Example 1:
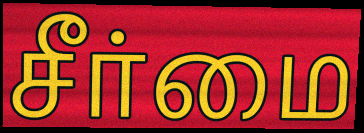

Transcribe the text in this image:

சீர்மை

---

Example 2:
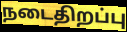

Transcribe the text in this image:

நடைதிறப்பு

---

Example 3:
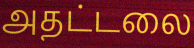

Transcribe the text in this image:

அதட்டலை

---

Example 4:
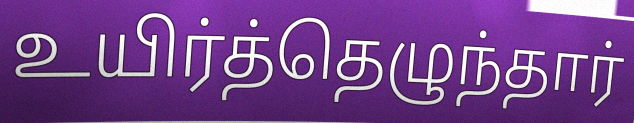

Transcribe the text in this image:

உயிர்த்தெழுந்தார்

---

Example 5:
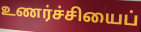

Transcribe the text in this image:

உணர்ச்சியைப்